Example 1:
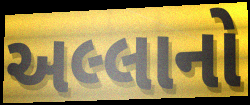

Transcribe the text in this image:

અલ્લાનો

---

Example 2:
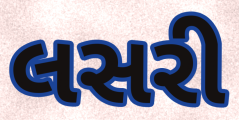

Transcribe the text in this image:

લસરી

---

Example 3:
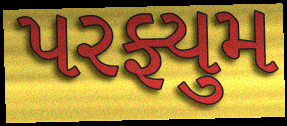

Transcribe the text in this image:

પરફ્યુમ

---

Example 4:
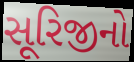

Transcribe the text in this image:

સૂરિજીનો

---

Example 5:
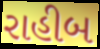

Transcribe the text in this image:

રાહીબ